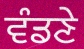
ਵੰਡਣੇ